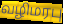
வழிமரபு